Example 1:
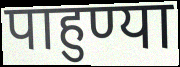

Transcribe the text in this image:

पाहुण्या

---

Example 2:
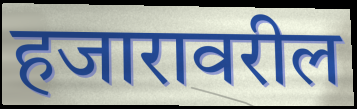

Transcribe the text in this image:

हजारावरील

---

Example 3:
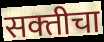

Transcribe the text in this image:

सक्‍तीचा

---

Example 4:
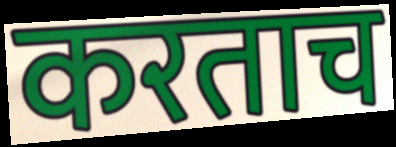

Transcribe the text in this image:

करताच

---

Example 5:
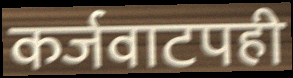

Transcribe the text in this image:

कर्जवाटपही